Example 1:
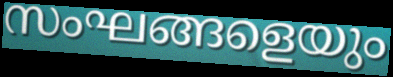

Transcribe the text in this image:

സംഘങ്ങളെയും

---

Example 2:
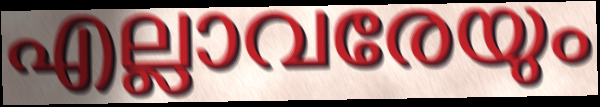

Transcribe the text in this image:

എല്ലാവരേയും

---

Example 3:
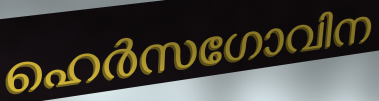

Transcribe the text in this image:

ഹെർസഗോവിന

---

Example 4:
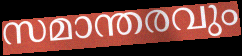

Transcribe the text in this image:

സമാന്തരവും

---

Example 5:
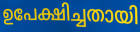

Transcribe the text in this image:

ഉപേക്ഷിച്ചതായി